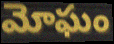
మోఘం